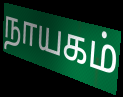
நாயகம்